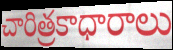
చారిత్రకాధారాలు